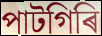
পাটগিৰি